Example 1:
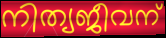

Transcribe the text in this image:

നിത്യജീവന്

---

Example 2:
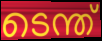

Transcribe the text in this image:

ടെന്ത്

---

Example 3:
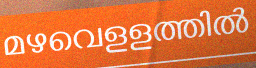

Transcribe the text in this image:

മഴവെളളത്തിൽ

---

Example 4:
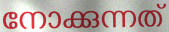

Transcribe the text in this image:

നോക്കുന്നത്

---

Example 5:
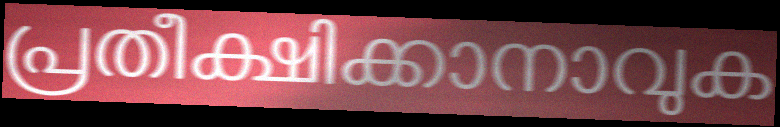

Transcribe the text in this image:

പ്രതീക്ഷിക്കാനാവുക